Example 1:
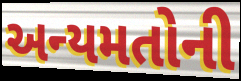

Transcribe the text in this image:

અન્યમતોની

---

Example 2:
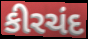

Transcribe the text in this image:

કીરચંદ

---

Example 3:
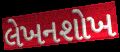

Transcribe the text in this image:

લેખનશોખ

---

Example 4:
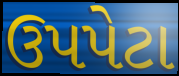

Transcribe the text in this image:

ઉપપેટા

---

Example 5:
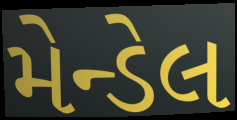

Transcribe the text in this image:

મેન્ડેલ